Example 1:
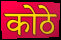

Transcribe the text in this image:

कोठे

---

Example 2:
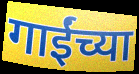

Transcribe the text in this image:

गाईंच्या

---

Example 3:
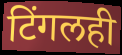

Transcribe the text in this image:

टिंगलही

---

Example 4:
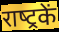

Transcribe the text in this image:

राष्ट्रकें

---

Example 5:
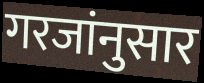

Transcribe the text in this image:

गरजांनुसार